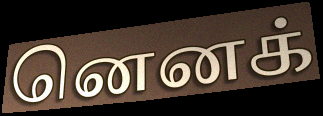
னெனக்